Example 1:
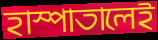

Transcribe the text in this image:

হাস্পাতালেই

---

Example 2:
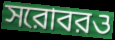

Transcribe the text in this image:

সরোবরও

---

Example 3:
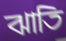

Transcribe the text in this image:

ঝাতি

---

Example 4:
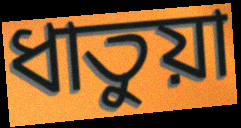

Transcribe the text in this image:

ধাতুয়া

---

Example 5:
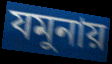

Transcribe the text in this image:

যমুনায়